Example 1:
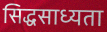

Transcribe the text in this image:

सिद्धसाध्यता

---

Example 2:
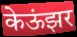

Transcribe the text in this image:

केऊंझर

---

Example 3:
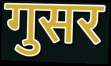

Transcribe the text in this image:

गुसर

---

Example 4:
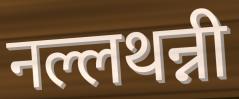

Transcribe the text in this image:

नल्लथन्नी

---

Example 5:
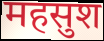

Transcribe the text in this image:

महसुश